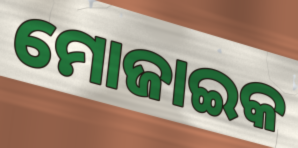
ମୋଜାଇକ